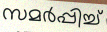
സമർപ്പിച്ച്